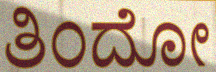
ತಿಂದೋ